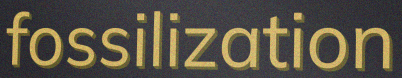
fossilization